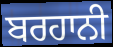
ਬਰਹਾਨੀ